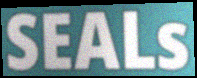
SEALs